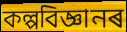
কল্পবিজ্ঞানৰ